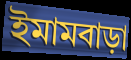
ইমামবাড়া